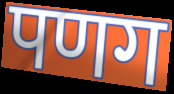
पणग